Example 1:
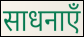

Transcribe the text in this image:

साधनाएँ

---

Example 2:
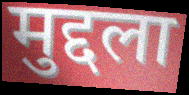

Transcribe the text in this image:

मुद्दला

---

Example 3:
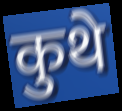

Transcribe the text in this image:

कुथे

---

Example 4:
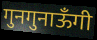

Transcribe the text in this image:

गुनगुनाऊँगी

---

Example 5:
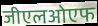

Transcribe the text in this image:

जीएलओएफ